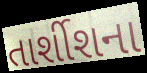
તાર્શીશના